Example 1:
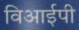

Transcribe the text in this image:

विआईपी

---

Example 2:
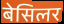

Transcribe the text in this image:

बेसिलर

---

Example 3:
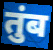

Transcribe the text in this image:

तुंब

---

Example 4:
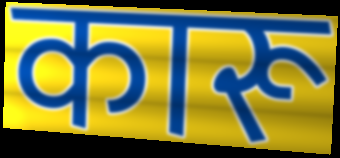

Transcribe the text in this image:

कारू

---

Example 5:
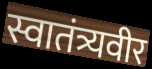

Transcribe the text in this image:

स्वातंत्र्यवीर